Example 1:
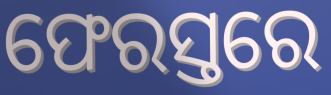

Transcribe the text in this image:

ଫେରସ୍ତରେ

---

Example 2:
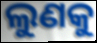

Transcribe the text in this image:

ଲୁଣକୁ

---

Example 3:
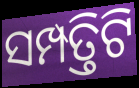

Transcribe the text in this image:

ସମ୍ପତ୍ତିଟି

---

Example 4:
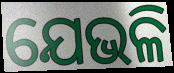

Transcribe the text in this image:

ଯେଭଳି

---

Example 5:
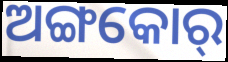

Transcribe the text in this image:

ଅଙ୍ଗକୋର୍